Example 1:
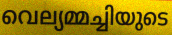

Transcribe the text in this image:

വെല്യമ്മച്ചിയുടെ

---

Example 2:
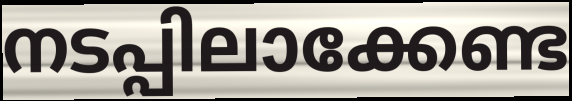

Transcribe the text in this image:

നടപ്പിലാക്കേണ്ട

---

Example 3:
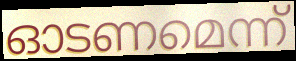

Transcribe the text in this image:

ഓടണമെന്ന്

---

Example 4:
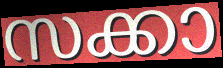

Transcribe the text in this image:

സക്കാ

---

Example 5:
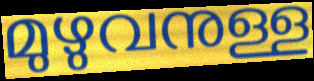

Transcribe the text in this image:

മുഴുവനുള്ള